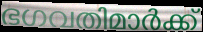
ഭഗവതിമാർക്ക്